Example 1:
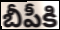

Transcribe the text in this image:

బీపీకి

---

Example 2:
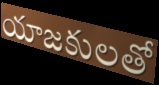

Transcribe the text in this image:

యాజకులతో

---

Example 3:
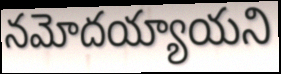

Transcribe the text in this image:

నమోదయ్యాయని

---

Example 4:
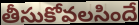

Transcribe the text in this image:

తీసుకోవలసిందే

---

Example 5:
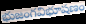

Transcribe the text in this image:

భుజంగవిభూషణం